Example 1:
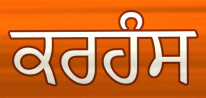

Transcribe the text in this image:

ਕਰਹੰਸ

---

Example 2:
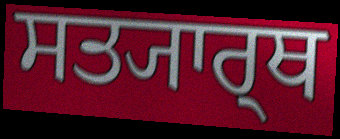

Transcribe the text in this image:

ਸਤ੍ਯਾਰ੍ਥ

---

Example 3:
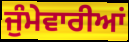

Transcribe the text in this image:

ਜੁੰਮੇਵਾਰੀਆਂ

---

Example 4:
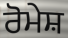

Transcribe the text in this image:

ਰੋਮੇਸ਼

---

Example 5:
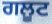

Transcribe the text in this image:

ਗਲੂਟ